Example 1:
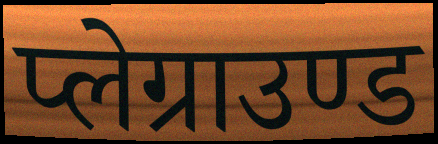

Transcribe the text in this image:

प्लेग्राउण्ड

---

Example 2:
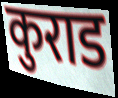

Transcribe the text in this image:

कुराड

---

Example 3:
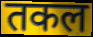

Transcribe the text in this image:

तकल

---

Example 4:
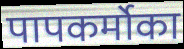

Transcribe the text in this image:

पापकर्मोका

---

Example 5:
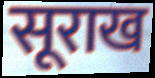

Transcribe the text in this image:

सूराख